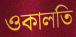
ওকালতি